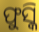
ଫୁସ୍କି